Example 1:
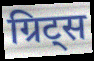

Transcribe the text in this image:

ग्रिट्स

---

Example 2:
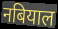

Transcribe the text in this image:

नबियाल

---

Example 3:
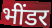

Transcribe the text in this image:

भींडर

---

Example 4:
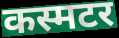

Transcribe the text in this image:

कस्मटर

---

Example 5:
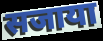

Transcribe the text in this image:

सजाया